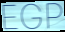
EGP